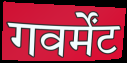
गवर्मेंट